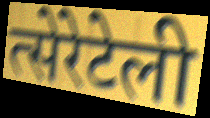
त्सेरेटेली